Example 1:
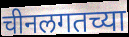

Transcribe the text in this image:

चीनलगतच्या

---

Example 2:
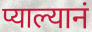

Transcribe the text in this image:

प्याल्यानं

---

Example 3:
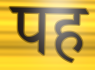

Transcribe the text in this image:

पह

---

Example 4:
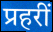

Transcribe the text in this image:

प्रहरीं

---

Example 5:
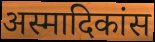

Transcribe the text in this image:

अस्मादिकांस